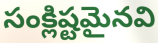
సంక్లిష్టమైనవి